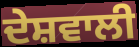
ਦੇਸ਼ਵਾਲੀ